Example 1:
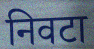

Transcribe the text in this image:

निवटा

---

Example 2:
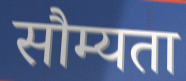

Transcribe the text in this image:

सौम्यता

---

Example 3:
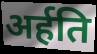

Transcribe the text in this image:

अर्हति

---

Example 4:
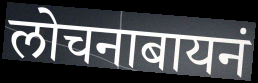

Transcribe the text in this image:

लोचनाबायनं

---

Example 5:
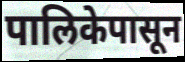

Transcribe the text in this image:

पालिकेपासून